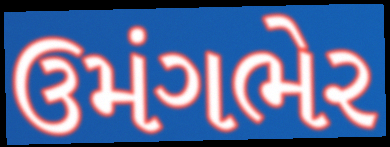
ઉમંગભેર